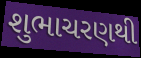
શુભાચરણથી